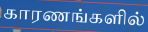
காரணங்களில்